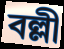
বল্লী